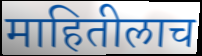
माहितीलाच